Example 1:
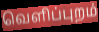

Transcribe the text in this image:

வெளிப்புறம்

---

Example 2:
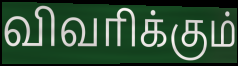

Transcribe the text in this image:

விவரிக்கும்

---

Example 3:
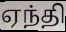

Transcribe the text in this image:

ஏந்தி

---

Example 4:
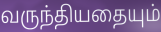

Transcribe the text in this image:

வருந்தியதையும்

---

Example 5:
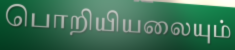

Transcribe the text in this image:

பொறியியலையும்